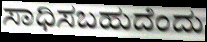
ಸಾಧಿಸಬಹುದೆಂದು